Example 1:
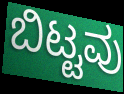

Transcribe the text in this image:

ಬಿಟ್ಟವು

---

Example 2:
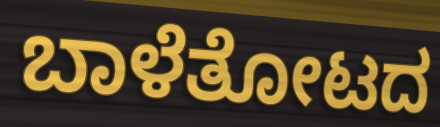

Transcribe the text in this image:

ಬಾಳೆತೋಟದ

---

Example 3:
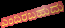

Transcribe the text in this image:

ಎಂದಿರಬಹುದು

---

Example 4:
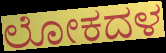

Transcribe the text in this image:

ಲೋಕದಳ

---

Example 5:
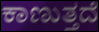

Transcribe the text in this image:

ಕಾಣುತ್ತದೆ